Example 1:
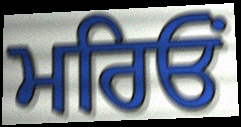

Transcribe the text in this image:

ਮਰਿਓਂ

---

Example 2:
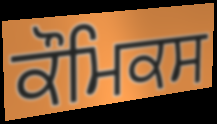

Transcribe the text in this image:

ਕੌਮਿਕਸ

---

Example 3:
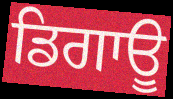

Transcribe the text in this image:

ਡਿਗਾਊ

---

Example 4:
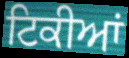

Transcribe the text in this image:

ਟਿਕੀਆਂ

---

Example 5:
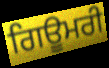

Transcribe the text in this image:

ਗਿਊਮਰੀ